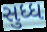
સુધ્ધ